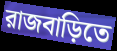
রাজবাড়িতে